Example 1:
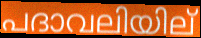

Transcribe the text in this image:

പദാവലിയില്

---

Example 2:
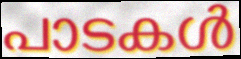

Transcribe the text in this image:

പാടകൾ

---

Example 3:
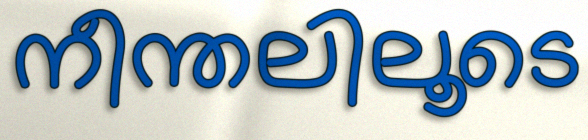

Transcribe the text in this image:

നീന്തലിലൂടെ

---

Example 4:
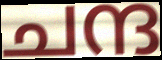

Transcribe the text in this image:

ചന്ദ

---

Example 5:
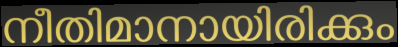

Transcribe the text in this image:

നീതിമാനായിരിക്കും